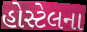
હોસ્ટેલના